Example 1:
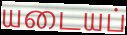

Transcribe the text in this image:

யடையப்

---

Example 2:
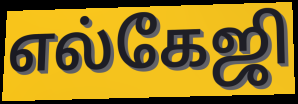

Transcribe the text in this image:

எல்கேஜி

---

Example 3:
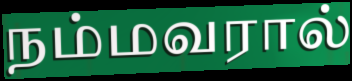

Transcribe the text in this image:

நம்மவரால்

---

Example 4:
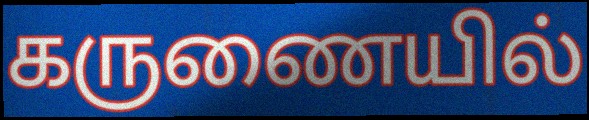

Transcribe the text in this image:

கருணையில்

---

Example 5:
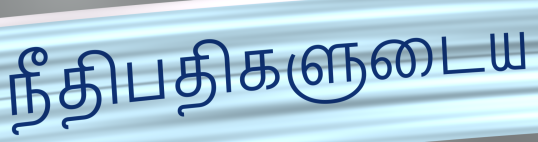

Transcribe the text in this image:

நீதிபதிகளுடைய